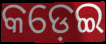
କଡ଼େଇ